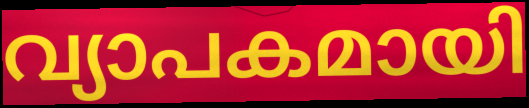
വ്യാപകമായി